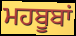
ਮਹਬੂਬਾਂ